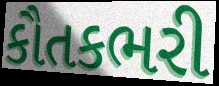
કૌતકભરી